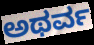
ಅಥರ್ವ